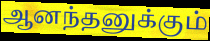
ஆனந்தனுக்கும்